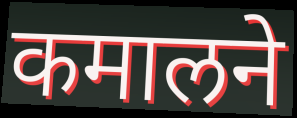
कमालने